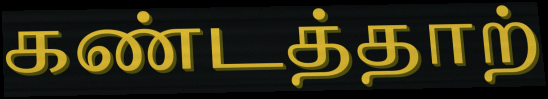
கண்டத்தாற்